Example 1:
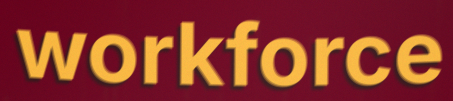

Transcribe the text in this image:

workforce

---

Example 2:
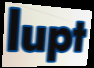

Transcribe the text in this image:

lupt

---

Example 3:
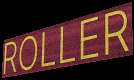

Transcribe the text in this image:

ROLLER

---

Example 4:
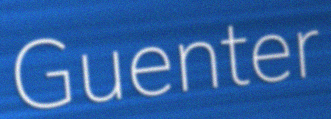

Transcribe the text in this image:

Guenter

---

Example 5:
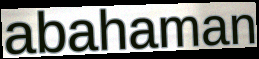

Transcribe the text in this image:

abahaman